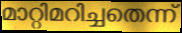
മാറ്റിമറിച്ചതെന്ന്